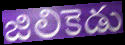
జిలికెడు